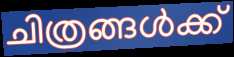
ചിത്രങ്ങൾക്ക്